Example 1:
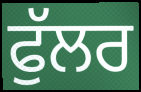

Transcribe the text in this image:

ਫੁੱਲਰ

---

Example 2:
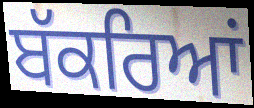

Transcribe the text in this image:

ਬੱਕਰਿਆਂ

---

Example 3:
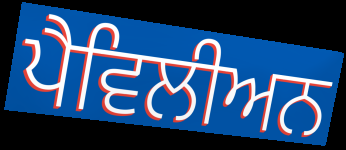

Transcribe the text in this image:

ਪੈਵਿਲੀਅਨ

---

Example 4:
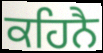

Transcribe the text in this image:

ਕਹਿਨੈ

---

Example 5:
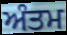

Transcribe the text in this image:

ਅੰਤਮ